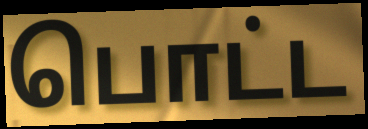
பொட்ட